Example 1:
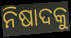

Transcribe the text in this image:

ନିଷାଦକୁ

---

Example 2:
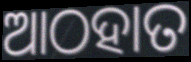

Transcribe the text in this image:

ଆଠହାତ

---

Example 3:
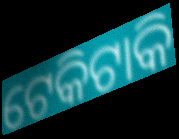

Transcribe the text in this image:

ଟେକିଟାକି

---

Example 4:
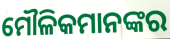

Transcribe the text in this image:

ମୌଳିକମାନଙ୍କର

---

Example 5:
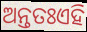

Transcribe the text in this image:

ଅନ୍ତତଃଏହି